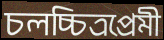
চলচ্চিত্রপ্রেমী